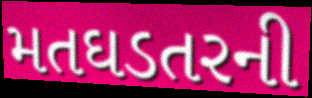
મતઘડતરની